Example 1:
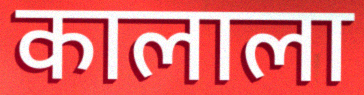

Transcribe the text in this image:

कालाला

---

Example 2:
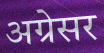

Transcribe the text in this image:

अग्रेसर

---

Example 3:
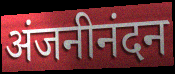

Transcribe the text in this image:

अंजनीनंदन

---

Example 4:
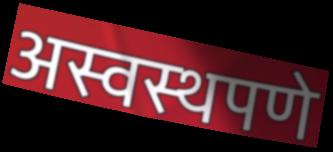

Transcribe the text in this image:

अस्वस्थपणे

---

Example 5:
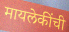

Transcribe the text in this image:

मायलेकींची